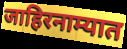
जाहिरनाम्यात